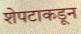
शेपटाकडून